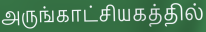
அருங்காட்சியகத்தில்